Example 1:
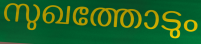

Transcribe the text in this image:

സുഖത്തോടും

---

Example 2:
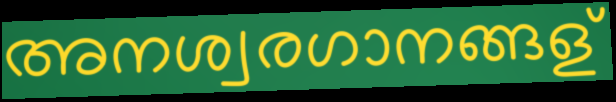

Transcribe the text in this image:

അനശ്വരഗാനങ്ങള്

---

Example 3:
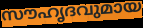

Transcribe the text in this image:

സൗഹൃദവുമായ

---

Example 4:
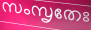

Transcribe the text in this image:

സംസൃതേഃ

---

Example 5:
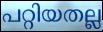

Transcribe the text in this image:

പറ്റിയതല്ല